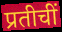
प्रतीचीं